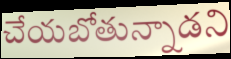
చేయబోతున్నాడని